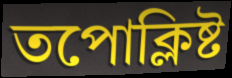
তপোক্লিষ্ট